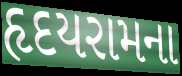
હૃદયરામના